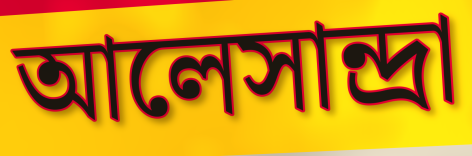
আলেসান্দ্রা